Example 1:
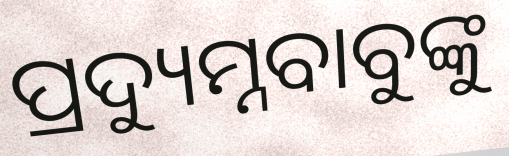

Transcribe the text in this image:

ପ୍ରଦ୍ୟୁମ୍ନବାବୁଙ୍କୁ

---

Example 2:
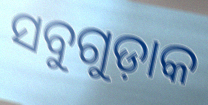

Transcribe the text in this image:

ସବୁଗୁଡ଼ାକ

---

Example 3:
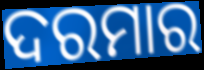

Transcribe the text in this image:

ଦରମାର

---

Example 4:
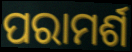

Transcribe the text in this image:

ପରାମର୍ଶ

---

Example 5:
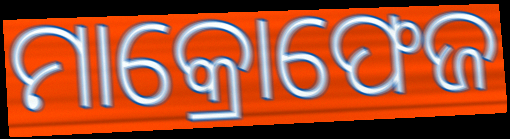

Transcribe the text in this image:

ମାକ୍ରୋଫେଜ